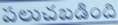
పలుచబడింది